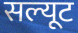
सल्यूट